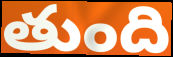
తుంది